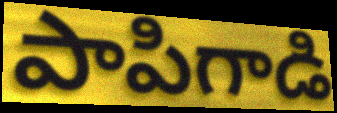
పాపిగాడి